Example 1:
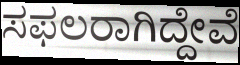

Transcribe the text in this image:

ಸಫಲರಾಗಿದ್ದೇವೆ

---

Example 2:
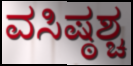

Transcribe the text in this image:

ವಸಿಷ್ಠಶ್ಚ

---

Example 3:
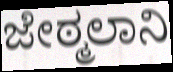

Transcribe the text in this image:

ಜೇಠ್ಮಲಾನಿ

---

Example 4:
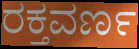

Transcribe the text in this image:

ರಕ್ತವರ್ಣ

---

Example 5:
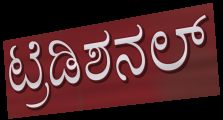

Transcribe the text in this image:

ಟ್ರೆಡಿಶನಲ್